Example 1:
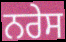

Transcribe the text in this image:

ਨਰੇਸ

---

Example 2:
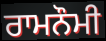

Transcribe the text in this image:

ਰਾਮਨੌਮੀ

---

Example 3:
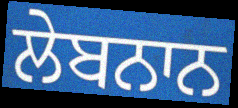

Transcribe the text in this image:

ਲੇਬਨਾਨ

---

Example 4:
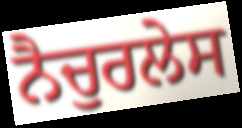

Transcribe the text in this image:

ਨੈਚੁਰਲੇਸ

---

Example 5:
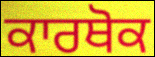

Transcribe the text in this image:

ਕਾਰਥੋਕ